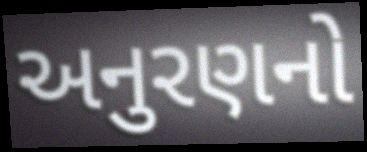
અનુરણનો